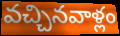
వచ్చినవాళ్లం